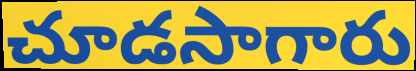
చూడసాగారు